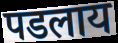
पडलाय